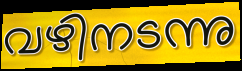
വഴിനടന്നു